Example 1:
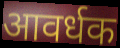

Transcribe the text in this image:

आवर्धक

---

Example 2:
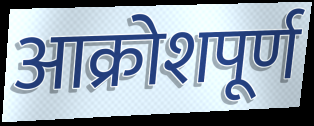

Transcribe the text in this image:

आक्रोशपूर्ण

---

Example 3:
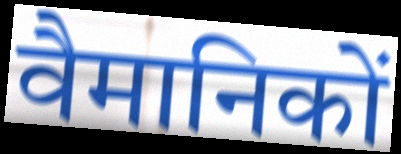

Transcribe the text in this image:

वैमानिकों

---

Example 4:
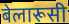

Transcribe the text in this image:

बेलारूसी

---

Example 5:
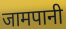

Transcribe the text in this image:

जामपानी